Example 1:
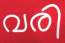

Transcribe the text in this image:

വരി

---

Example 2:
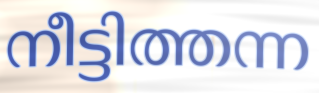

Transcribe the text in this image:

നീട്ടിത്തന്ന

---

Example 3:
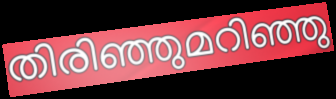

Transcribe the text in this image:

തിരിഞ്ഞുമറിഞ്ഞു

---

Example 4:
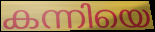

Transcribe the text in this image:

കന്നിയെ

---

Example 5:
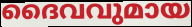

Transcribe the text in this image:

ദൈവവുമായ